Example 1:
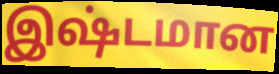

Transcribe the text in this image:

இஷ்டமான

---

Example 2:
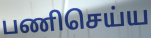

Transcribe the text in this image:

பணிசெய்ய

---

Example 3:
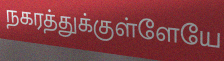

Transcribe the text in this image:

நகரத்துக்குள்ளேயே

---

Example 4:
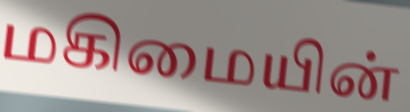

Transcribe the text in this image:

மகிமையின்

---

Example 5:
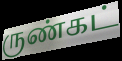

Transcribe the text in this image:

ருண்கட்